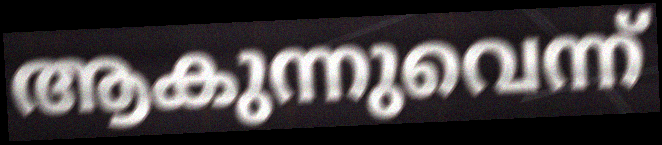
ആകുന്നുവെന്ന്